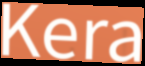
Kera